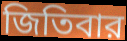
জিতিবার